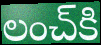
లంచ్‌కి